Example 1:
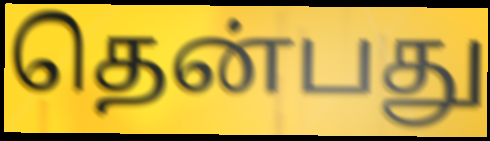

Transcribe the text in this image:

தென்பது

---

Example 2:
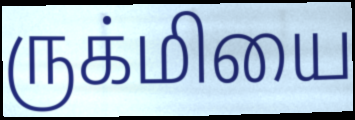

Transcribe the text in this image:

ருக்மியை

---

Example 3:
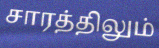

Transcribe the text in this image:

சாரத்திலும்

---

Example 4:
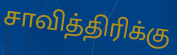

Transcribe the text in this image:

சாவித்திரிக்கு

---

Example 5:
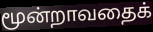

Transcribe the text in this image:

மூன்றாவதைக்